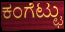
ಕಂಗೆಟ್ಟು